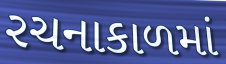
રચનાકાળમાં